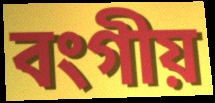
বংগীয়